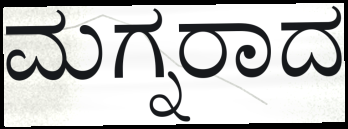
ಮಗ್ನರಾದ